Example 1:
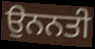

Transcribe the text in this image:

ਉਨਨਤੀ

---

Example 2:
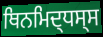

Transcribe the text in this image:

ਥਿਨਮਿਦ੍ਧਸ੍ਸ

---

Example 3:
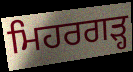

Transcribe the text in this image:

ਮਿਹਰਗੜ੍ਹ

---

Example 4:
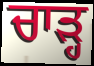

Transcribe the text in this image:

ਚਾਡ਼੍ਹ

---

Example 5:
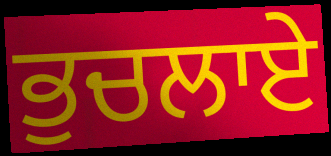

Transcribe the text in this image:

ਭੁਚਲਾਏ